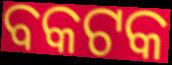
ବକଟକ